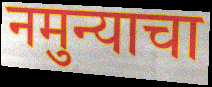
नमुन्याचा